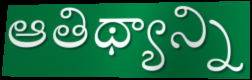
ఆతిథ్యాన్ని